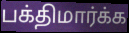
பக்திமார்க்க